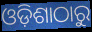
ଓଡ଼ିଶାଠାରୁ